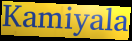
Kamiyala